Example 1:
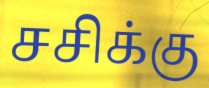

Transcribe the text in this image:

சசிக்கு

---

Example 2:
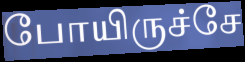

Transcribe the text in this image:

போயிருச்சே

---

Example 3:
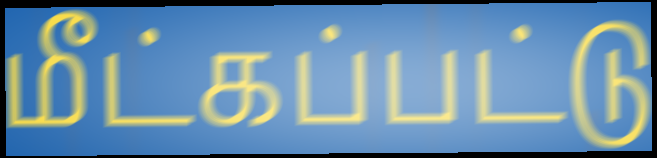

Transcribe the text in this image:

மீட்கப்பட்டு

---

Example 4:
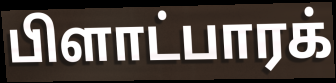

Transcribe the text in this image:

பிளாட்பாரக்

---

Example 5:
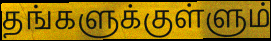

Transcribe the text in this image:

தங்களுக்குள்ளும்